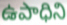
ఉపాధిని